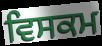
ਵਿਸਕਮ